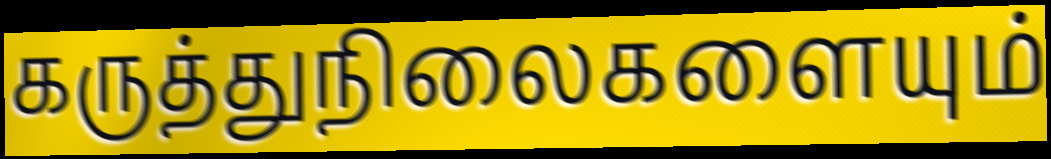
கருத்துநிலைகளையும்